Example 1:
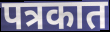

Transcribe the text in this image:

पत्रकात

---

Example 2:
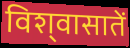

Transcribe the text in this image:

विश्वासातें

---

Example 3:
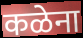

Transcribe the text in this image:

कळेना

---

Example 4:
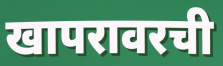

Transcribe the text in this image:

खापरावरची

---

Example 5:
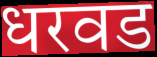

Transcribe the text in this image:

धरवड